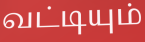
வட்டியும்